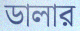
ডালার